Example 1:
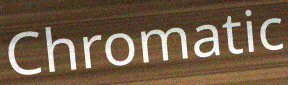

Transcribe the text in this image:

Chromatic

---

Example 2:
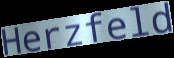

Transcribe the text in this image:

Herzfeld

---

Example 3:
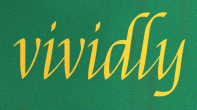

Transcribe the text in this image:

vividly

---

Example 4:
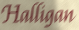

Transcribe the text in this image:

Halligan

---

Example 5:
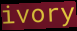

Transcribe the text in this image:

ivory